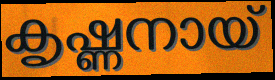
കൃഷ്ണനായ്